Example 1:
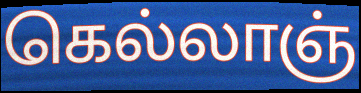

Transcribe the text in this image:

கெல்லாஞ்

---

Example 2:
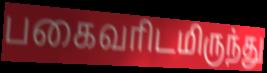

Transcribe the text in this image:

பகைவரிடமிருந்து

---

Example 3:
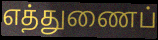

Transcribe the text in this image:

எத்துணைப்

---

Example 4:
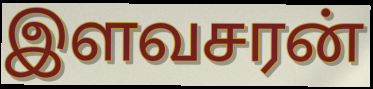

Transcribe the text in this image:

இளவசரன்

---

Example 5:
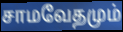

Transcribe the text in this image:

சாமவேதமும்